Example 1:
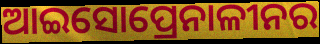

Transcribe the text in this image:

ଆଇସୋପ୍ରେନାଳୀନର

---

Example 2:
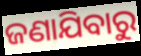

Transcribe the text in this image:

ଜଣାଯିବାରୁ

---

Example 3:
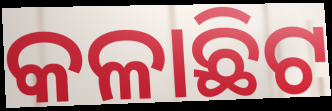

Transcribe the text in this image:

କଳାଛିଟ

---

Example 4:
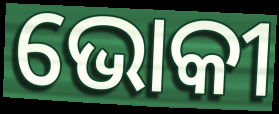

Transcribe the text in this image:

ଭୋକୀ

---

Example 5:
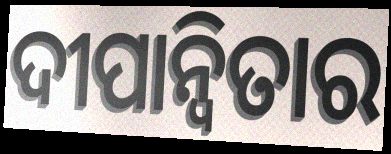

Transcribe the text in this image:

ଦୀପାନ୍ୱିତାର